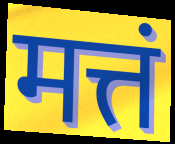
मत्तं